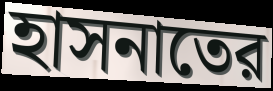
হাসনাতের